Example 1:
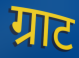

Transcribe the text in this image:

ग्राट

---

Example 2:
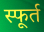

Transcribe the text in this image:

स्‍फूर्त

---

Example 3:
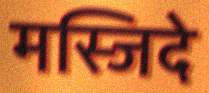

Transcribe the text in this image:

मस्जिदे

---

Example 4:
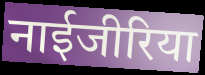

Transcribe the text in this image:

नाईजीरिया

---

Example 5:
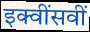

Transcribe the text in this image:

इक्वींसवीं